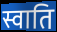
स्वाति